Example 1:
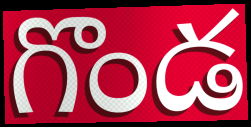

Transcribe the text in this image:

గొండ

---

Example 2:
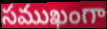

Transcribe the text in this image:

సముఖంగా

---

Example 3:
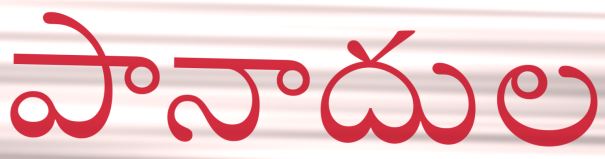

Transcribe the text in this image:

పానాదుల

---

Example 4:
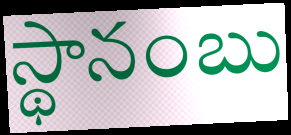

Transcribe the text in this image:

స్థానంబు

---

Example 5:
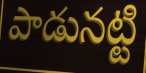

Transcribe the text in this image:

పాడునట్టి